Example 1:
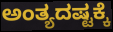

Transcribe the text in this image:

ಅಂತ್ಯದಷ್ಟಕ್ಕೆ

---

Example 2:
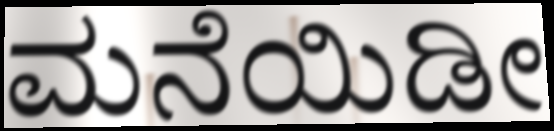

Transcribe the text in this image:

ಮನೆಯಿಡೀ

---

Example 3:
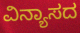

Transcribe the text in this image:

ವಿನ್ಯಾಸದ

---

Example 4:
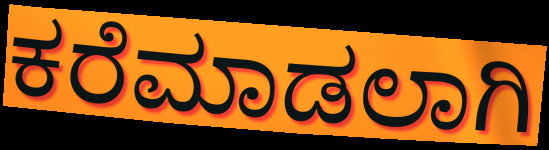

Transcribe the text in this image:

ಕರೆಮಾಡಲಾಗಿ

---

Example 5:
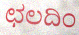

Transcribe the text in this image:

ಛಲದಿಂ